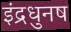
इंद्रधुनष